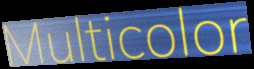
Multicolor